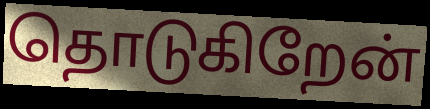
தொடுகிறேன்